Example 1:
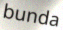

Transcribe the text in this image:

bunda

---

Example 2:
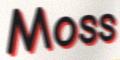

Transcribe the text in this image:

Moss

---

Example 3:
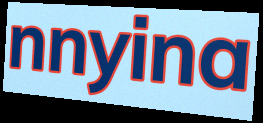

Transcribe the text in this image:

nnyina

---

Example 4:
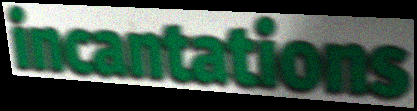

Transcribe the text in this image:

incantations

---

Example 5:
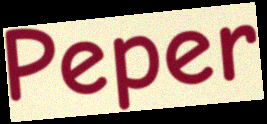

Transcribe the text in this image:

Peper